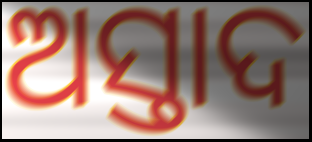
ଅସ୍ତାଦ